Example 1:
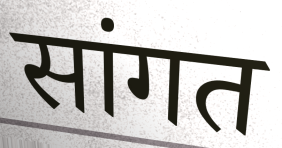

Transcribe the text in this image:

सांगत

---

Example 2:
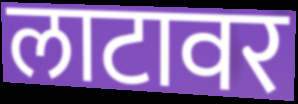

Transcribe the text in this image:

लाटावर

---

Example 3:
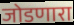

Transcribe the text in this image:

जोडणारा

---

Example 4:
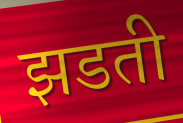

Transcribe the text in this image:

झडती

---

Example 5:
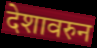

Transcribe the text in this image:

देशावरुन